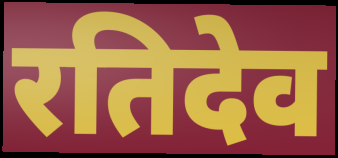
रतिदेव